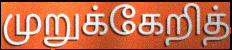
முறுக்கேறித்